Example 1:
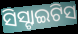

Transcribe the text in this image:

ସିସ୍ଟାଇଟିସ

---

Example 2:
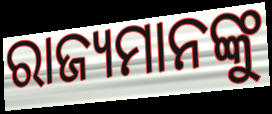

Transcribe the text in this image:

ରାଜ୍ଯମାନଙ୍କୁ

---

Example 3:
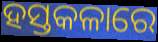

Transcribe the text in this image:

ହସ୍ତକଳାରେ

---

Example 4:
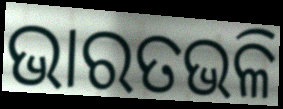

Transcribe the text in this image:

ଭାରତଭଳି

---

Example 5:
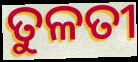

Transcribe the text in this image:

ତୁଳତୀ